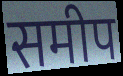
समीप